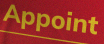
Appoint